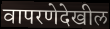
वापरणेदेखील